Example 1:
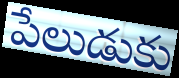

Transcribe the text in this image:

పేలుడుకు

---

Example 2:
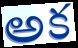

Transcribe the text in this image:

అక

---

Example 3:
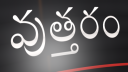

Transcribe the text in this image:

వుత్తరం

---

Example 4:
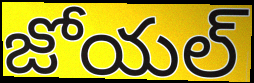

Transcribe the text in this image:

జోయల్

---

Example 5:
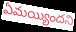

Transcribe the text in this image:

ఏమయ్యిందని